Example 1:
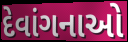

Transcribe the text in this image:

દેવાંગનાઓ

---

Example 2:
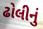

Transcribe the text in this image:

ઢોલીનું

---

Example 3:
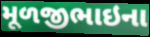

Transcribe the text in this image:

મૂળજીભાઇના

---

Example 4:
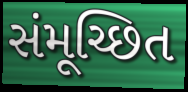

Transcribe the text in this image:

સંમૂચ્છિત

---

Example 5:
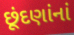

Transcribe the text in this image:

છૂંદણાંનાં